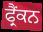
ਫ੍ਰੈਂਕਨ